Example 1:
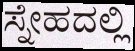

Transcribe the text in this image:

ಸ್ನೇಹದಲ್ಲಿ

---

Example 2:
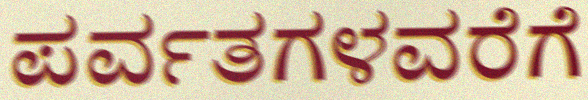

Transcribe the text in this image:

ಪರ್ವತಗಳವರೆಗೆ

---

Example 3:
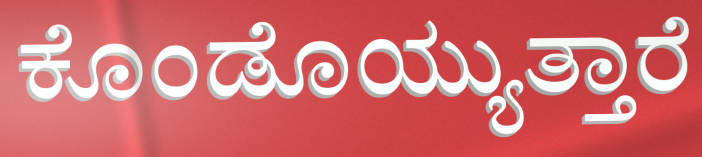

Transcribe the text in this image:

ಕೊಂಡೊಯ್ಯುತ್ತಾರೆ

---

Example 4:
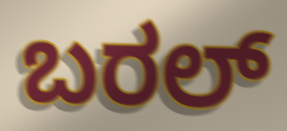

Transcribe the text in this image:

ಬರಲ್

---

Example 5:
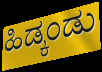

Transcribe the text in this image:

ಹಿಡ್ಕಂಡು